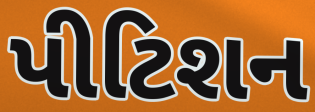
પીટિશન